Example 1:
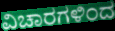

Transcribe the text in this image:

ವಿಚಾರಗಳಿಂದ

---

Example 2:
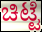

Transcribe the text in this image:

ಚಿಟ್ಟೆ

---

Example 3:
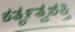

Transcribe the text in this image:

ಕರ್ತೃತ್ವಶಕ್ತಿ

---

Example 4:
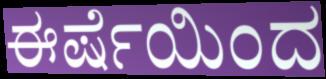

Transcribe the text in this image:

ಈರ್ಷೆಯಿಂದ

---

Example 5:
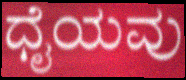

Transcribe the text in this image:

ಧೈಯವು